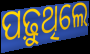
ପଢ଼ୁଥିଲେ